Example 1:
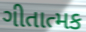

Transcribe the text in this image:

ગીતાત્મક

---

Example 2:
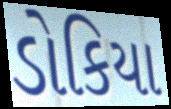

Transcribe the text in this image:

ડોકિયા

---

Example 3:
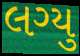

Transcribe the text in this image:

લગ્યુ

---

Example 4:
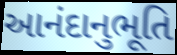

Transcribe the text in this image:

આનંદાનુભૂતિ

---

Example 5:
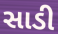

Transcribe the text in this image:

સાડી